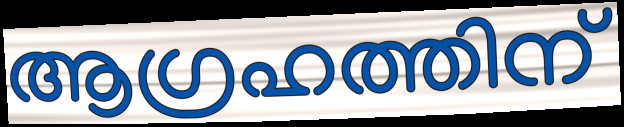
ആഗ്രഹത്തിന്